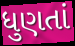
ધુણતાં